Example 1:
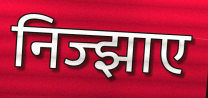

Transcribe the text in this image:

निज्झाए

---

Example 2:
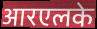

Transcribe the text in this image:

आरएलके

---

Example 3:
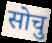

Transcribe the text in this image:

सोचु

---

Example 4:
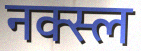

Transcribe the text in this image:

नक्स्ल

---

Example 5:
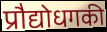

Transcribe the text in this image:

प्रौद्योधगकी